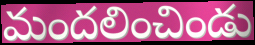
మందలించిండు